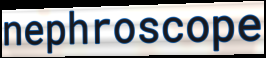
nephroscope